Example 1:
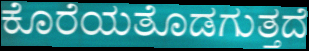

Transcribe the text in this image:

ಕೊರೆಯತೊಡಗುತ್ತದೆ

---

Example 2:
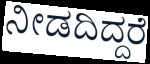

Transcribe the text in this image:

ನೀಡದಿದ್ದರೆ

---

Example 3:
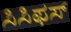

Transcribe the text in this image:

ಸಿಸಿಫಸ್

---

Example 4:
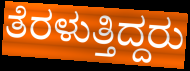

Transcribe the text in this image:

ತೆರಳುತ್ತಿದ್ದರು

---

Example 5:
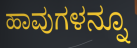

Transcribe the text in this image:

ಹಾವುಗಳನ್ನೂ